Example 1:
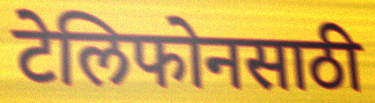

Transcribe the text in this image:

टेलिफोनसाठी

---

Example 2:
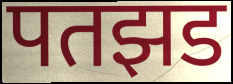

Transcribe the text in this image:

पतझड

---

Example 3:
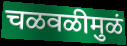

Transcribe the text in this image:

चळवळीमुळं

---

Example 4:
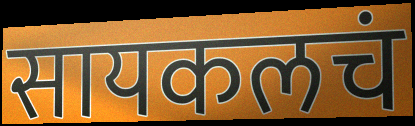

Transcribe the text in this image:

सायकलचं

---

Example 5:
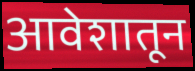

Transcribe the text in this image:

आवेशातून